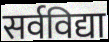
सर्वविद्या